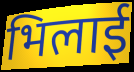
भिलाई